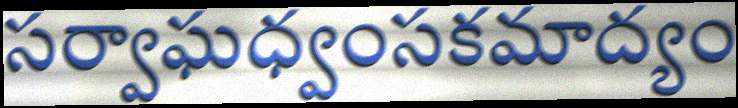
సర్వాఘధ్వంసకమాద్యం